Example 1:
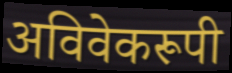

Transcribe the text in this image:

अविवेकरूपी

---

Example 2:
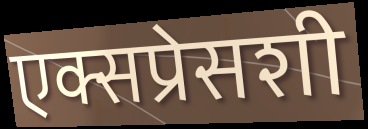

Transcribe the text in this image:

एक्सप्रेसशी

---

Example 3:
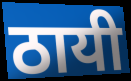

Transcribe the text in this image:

ठायी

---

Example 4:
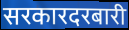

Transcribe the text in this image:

सरकारदरबारी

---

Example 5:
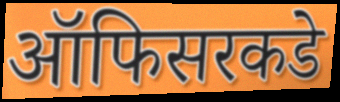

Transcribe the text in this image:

ऑफिसरकडे